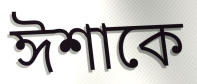
ঈশাকে